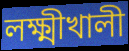
লক্ষ্মীখালী